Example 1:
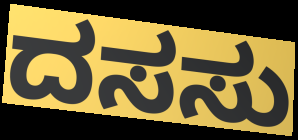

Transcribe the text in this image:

ದಸಸು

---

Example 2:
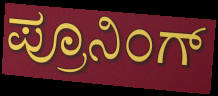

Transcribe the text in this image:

ಪ್ರೂನಿಂಗ್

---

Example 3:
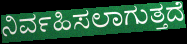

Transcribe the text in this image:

ನಿರ್ವಹಿಸಲಾಗುತ್ತದೆ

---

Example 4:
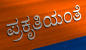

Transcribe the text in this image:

ಪ್ರಕೃತಿಯಂತೆ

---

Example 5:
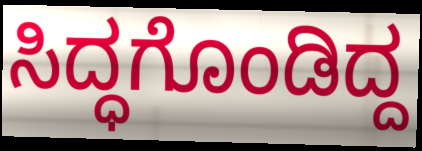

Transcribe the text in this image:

ಸಿದ್ಧಗೊಂಡಿದ್ದ